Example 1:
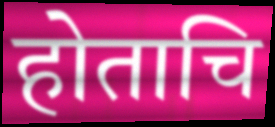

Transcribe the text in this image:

होताचि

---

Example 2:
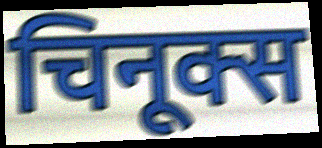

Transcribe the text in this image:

चिनूक्स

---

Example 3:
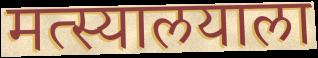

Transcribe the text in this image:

मत्स्यालयाला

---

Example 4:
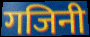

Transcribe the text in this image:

गजिनी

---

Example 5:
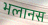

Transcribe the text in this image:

भलानस